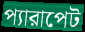
প্যারাপেট